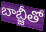
బాబ్జీతో